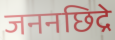
जननछिद्रे